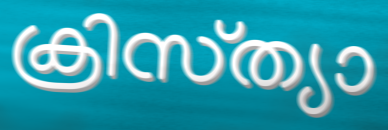
ക്രിസ്‌ത്യാ